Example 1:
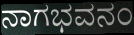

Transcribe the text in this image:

ನಾಗಭವನಂ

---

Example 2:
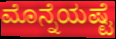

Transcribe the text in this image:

ಮೊನ್ನೆಯಷ್ಟೆ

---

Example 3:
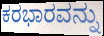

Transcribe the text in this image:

ಕರಭಾರವನ್ನು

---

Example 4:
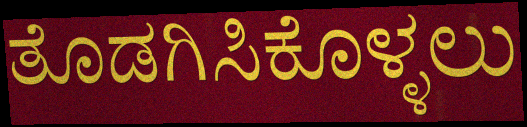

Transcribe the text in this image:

ತೊಡಗಿಸಿಕೊಳ್ಳಲು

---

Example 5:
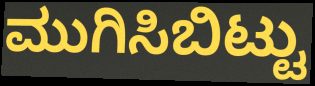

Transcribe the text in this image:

ಮುಗಿಸಿಬಿಟ್ಟು